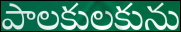
పాలకులకును